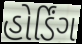
હોર્ડિંગ